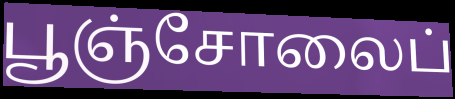
பூஞ்சோலைப்